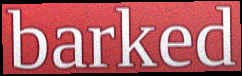
barked